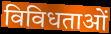
विविधताओं